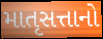
માતૃસત્તાનો